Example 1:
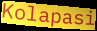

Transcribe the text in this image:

Kolapasi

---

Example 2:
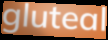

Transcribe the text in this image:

gluteal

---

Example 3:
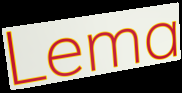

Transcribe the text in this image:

Lema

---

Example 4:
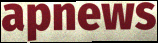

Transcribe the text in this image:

apnews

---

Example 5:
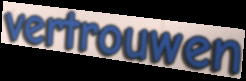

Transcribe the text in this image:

vertrouwen